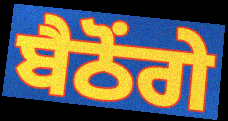
ਬੈਠੋਂਗੇ